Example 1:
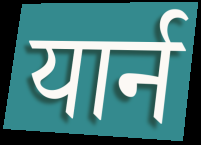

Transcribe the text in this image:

यार्न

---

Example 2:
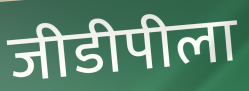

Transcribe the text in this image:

जीडीपीला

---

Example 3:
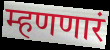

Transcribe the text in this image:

म्हणणारं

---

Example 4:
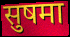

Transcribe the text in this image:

सुषमा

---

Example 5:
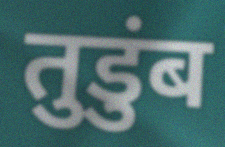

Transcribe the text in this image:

तुडुंब